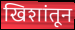
खिशांतून